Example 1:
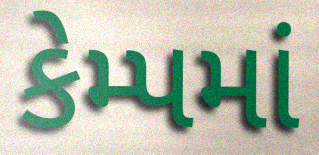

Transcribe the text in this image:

કેમ્પમાં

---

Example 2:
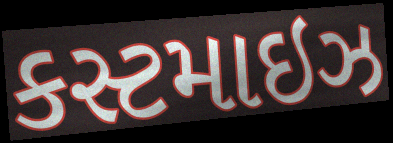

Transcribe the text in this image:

કસ્ટમાઇઝ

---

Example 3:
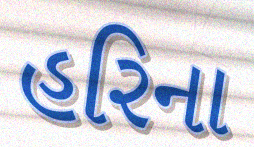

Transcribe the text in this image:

હરિના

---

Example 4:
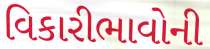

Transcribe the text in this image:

વિકારીભાવોની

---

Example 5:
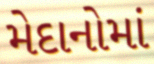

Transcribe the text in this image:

મેદાનોમાં